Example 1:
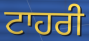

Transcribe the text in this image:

ਟਾਹਰੀ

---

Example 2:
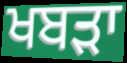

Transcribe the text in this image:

ਖਬੜਾ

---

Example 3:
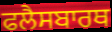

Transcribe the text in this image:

ਫਲੈਸਬਾਰਥ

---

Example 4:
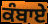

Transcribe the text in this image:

ਕੰਬਾਏ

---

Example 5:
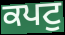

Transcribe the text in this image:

ਕਪਟੁ